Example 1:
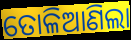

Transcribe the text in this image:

ତୋଳିଆଣିଲା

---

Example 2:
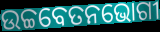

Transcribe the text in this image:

ଉଚ୍ଚବେତନଭୋଗୀ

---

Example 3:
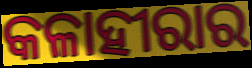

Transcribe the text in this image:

କଳାହୀରାର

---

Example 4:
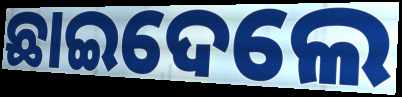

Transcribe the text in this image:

ଛାଇଦେଲେ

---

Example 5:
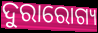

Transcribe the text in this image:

ଦୁରାରୋଗ୍ୟ